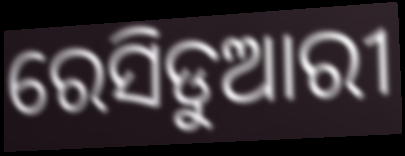
ରେସିଡୁଆରୀ